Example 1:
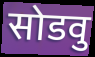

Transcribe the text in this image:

सोडवु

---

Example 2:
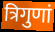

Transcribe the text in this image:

त्रिगुणां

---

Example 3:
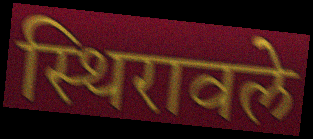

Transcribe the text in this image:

स्थिरावले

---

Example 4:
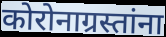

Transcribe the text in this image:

कोरोनाग्रस्तांना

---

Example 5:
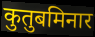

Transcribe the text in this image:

कुतुबमिनार